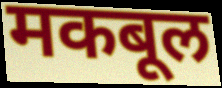
मकबूल